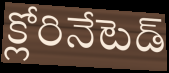
క్లోరినేటెడ్